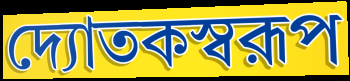
দ্যোতকস্বরূপ